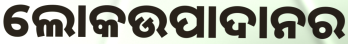
ଲୋକଉପାଦାନର